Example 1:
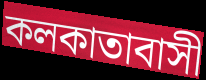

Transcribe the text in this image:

কলকাতাবাসী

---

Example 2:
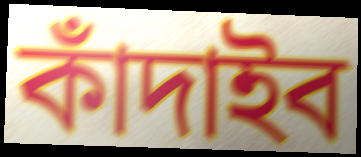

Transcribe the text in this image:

কাঁদাইব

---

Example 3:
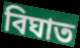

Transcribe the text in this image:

বিঘাত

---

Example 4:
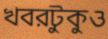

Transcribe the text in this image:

খবরটুকুও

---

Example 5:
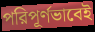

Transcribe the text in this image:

পরিপূর্ণভাবেই